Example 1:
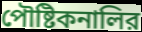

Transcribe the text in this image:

পৌষ্টিকনালির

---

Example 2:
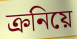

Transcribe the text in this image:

ক্রনিয়ে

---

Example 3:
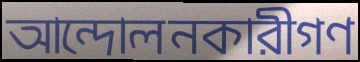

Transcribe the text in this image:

আন্দোলনকারীগণ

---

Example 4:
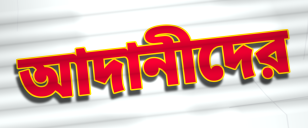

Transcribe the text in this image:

আদানীদের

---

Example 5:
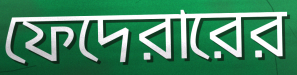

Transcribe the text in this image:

ফেদেরারের